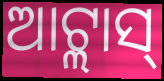
ଆଟ୍ଲାସ୍